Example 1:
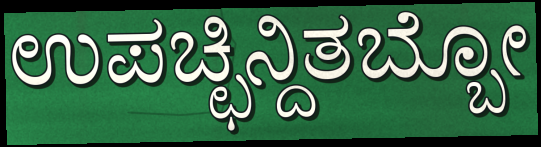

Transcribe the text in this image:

ಉಪಚ್ಛಿನ್ದಿತಬ್ಬೋ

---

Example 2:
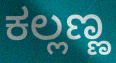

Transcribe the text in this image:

ಕಲ್ಲಣ್ಣ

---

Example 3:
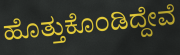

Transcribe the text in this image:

ಹೊತ್ತುಕೊಂಡಿದ್ದೇವೆ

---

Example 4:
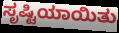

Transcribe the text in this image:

ಸೃಷ್ಟಿಯಾಯಿತು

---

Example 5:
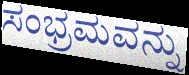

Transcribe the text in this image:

ಸಂಭ್ರಮವನ್ನು